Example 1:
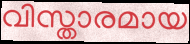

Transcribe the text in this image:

വിസ്താരമായ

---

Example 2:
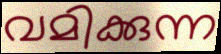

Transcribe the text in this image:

വമിക്കുന്ന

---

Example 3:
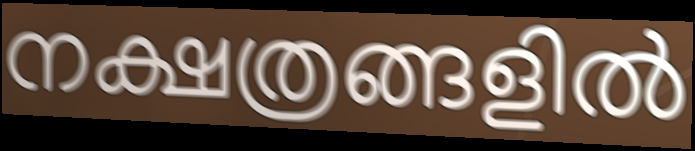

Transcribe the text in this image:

നക്ഷത്രങ്ങളിൽ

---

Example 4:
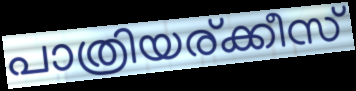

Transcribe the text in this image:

പാത്രിയര്ക്കീസ്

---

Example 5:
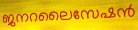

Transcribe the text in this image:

ജനറലൈസേഷൻ